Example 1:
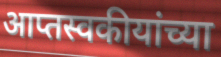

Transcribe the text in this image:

आप्तस्वकीयांच्या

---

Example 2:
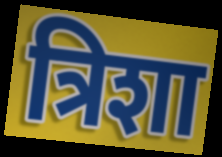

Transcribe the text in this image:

त्रिशा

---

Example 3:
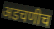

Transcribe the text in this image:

अडचणीच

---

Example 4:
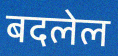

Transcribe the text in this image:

बदलेल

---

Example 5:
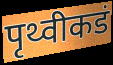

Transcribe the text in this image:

पृथ्वीकडं